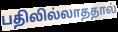
பதிலில்லாததால்